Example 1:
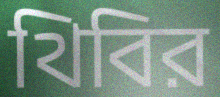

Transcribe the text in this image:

থিবির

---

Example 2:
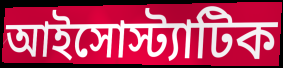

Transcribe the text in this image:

আইসোস্ট্যাটিক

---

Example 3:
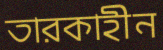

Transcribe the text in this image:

তারকাহীন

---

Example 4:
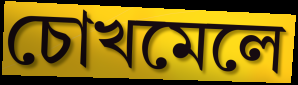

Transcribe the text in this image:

চোখমেলে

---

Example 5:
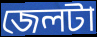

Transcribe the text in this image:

জেলটা